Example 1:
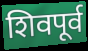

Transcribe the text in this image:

शिवपूर्व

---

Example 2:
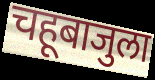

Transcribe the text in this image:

चहूबाजुला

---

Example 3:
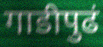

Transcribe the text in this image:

गाडीपुढं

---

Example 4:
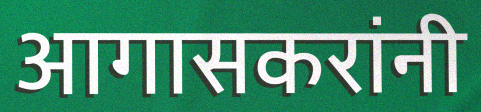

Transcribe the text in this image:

आगासकरांनी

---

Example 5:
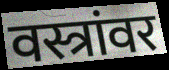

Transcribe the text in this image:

वस्त्रांवर